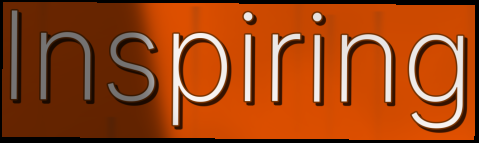
Inspiring